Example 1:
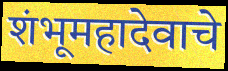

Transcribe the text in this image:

शंभूमहादेवाचे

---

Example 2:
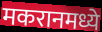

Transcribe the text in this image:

मकरानमध्ये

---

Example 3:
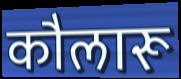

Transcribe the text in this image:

कौलारू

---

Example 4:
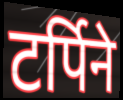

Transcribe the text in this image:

टर्पिने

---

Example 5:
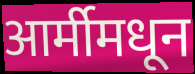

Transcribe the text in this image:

आर्मीमधून